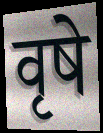
वृषे